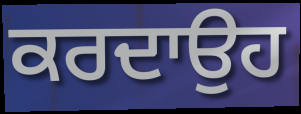
ਕਰਦਾਉਹ